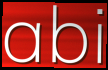
abi